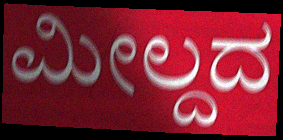
ಮೀಲ್ದದ